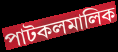
পাটকলমালিক